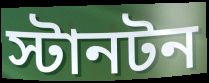
স্টানটন